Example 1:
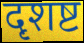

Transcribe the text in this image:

दृशष्ट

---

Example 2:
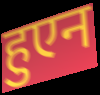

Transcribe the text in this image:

हुएन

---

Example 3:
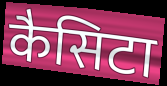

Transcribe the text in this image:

कैसिटा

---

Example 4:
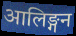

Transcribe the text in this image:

आलिङ्गन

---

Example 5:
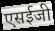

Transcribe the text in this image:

एसईजी